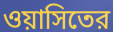
ওয়াসিতের